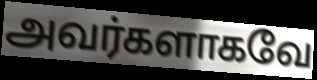
அவர்களாகவே